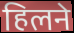
हिलने